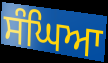
ਸੰਘਿਆ